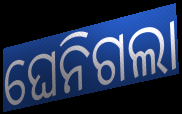
ଘେନିଗଲା